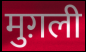
मुग़ली